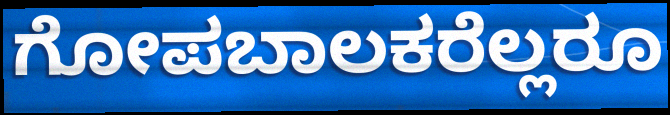
ಗೋಪಬಾಲಕರೆಲ್ಲರೂ